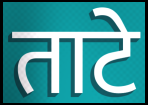
ताटे